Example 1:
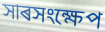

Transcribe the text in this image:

সাৰসংক্ষেপ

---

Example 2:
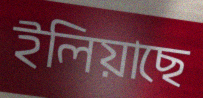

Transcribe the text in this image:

ইলিয়াছে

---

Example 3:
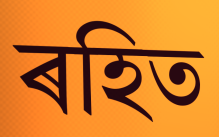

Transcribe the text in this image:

ৰহিত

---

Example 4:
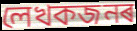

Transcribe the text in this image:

লেখকজনৰ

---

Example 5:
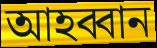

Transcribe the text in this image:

আহব্বান